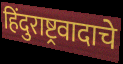
हिंदुराष्ट्रवादाचे